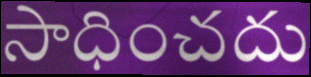
సాధించదు